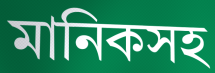
মানিকসহ